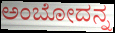
ಅಂಬೋದನ್ನ